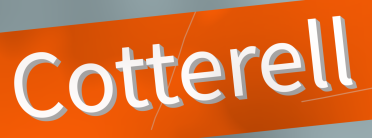
Cotterell